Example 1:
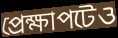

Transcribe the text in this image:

প্রেক্ষাপটেও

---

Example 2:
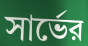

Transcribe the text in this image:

সার্ভের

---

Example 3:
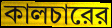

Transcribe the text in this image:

কালচারের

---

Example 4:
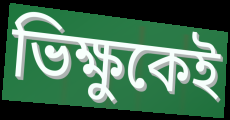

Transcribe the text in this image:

ভিক্ষুকেই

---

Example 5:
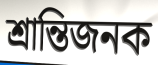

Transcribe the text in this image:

শ্রান্তিজনক